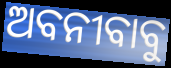
ଅବନୀବାବୁ